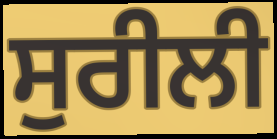
ਸੁਰੀਲੀ